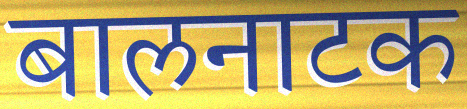
बालनाटक